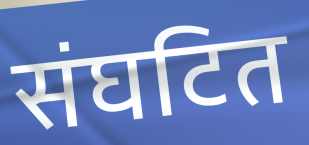
संघटित